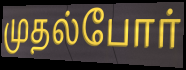
முதல்போர்